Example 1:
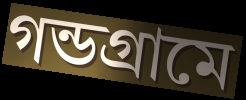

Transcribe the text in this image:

গন্ডগ্রামে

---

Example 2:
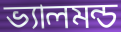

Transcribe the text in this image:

ভ্যালমন্ড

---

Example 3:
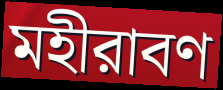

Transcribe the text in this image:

মহীরাবণ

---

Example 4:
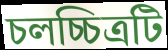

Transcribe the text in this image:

চলচ্চিত্রটি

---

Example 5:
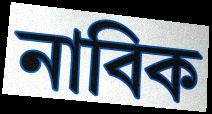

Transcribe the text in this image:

নাবিক